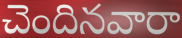
చెందినవారా